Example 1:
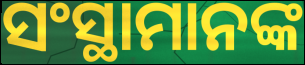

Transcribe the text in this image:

ସଂସ୍ଥାମାନଙ୍କ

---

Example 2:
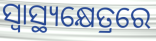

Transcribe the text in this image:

ସ୍ୱାସ୍ଥ୍ୟକ୍ଷେତ୍ରରେ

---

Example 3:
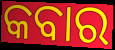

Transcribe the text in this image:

କବାର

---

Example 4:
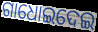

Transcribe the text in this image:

ଗାଧୋଇଦେଇ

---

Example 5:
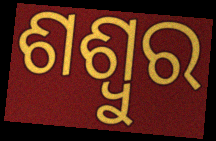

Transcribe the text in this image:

ଶଶ୍ୱୁର